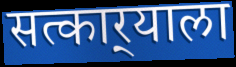
सत्कार्याला